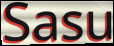
Sasu